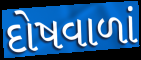
દોષવાળાં